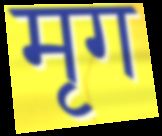
मृग